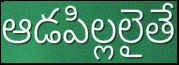
ఆడపిల్లలైతే